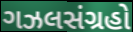
ગઝલસંગ્રહો